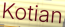
Kotian